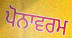
ਪੋਨਾਵਰਮ